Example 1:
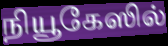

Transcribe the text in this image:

நியூகேஸில்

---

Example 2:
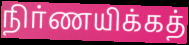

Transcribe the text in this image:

நிர்ணயிக்கத்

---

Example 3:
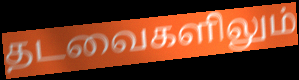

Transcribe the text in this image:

தடவைகளிலும்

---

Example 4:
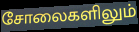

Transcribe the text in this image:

சோலைகளிலும்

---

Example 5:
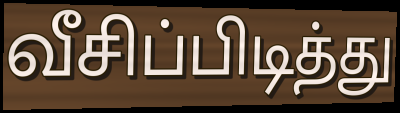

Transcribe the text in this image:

வீசிப்பிடித்து